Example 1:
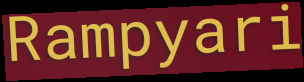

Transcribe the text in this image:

Rampyari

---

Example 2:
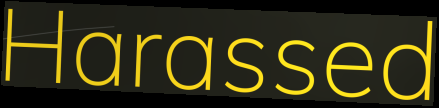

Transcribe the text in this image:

Harassed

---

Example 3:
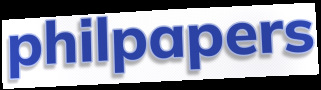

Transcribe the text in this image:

philpapers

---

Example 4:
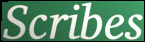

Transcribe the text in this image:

Scribes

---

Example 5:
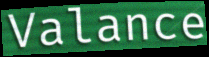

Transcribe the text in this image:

Valance